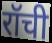
रॉची